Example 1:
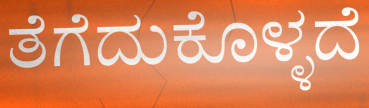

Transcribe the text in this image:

ತೆಗೆದುಕೊಳ್ಳದೆ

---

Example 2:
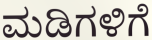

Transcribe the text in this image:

ಮಡಿಗಳಿಗೆ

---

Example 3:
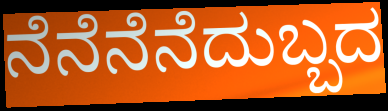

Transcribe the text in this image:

ನೆನೆನೆನೆದುಬ್ಬದ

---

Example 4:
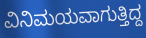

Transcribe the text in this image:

ವಿನಿಮಯವಾಗುತ್ತಿದ್ದ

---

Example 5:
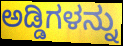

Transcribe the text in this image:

ಅಡ್ಡಿಗಳನ್ನು